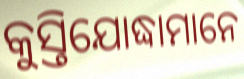
କୁସ୍ତିଯୋଦ୍ଧାମାନେ